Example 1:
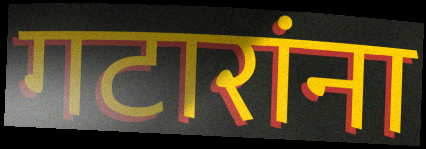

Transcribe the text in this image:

गटारांना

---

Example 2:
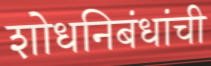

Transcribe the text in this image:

शोधनिबंधांची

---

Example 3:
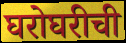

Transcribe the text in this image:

घरोघरीची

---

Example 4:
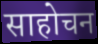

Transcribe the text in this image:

साहोचन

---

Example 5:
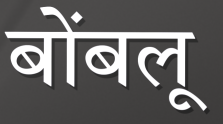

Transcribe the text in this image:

बोंबलू